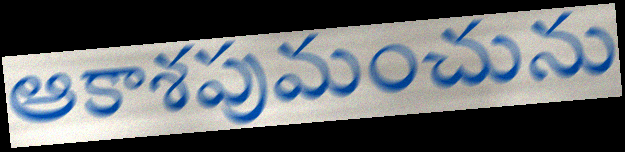
ఆకాశపుమంచును